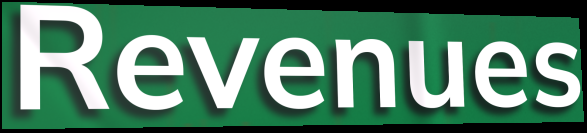
Revenues